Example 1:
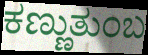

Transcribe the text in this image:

ಕಣ್ಣುತುಂಬ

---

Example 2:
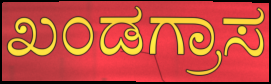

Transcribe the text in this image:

ಖಂಡಗ್ರಾಸ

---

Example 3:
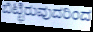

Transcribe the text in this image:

ಬಿಟ್ಟಿರುವುದರಿಂದ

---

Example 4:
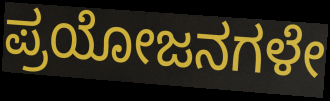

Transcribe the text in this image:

ಪ್ರಯೋಜನಗಳೇ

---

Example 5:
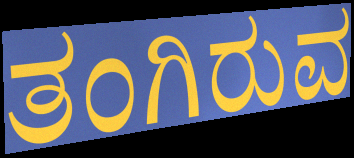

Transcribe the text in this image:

ತಂಗಿರುವ